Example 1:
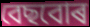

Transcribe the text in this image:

বেছবোৰ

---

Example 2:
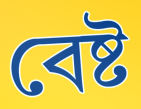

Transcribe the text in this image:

বেষ্ট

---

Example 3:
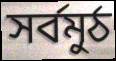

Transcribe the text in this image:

সৰ্বমুঠ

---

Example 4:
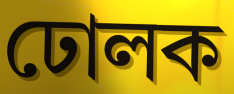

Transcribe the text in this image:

ঢোলক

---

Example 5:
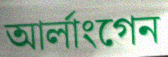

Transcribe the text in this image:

আৰ্লাংগেন